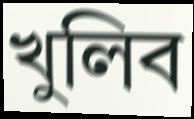
খুলিব